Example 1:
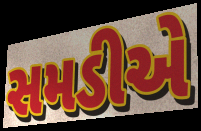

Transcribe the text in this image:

સમડીએ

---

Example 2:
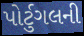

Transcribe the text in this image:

પોર્ટુગલની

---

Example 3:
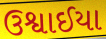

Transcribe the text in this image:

ઉશ્વાઈયા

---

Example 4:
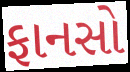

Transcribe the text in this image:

ફાનસો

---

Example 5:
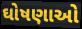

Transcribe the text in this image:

ઘોષણાઓ